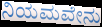
ನಿಯಮವೇನು